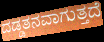
ದಡ್ಡತನವಾಗುತ್ತದೆ